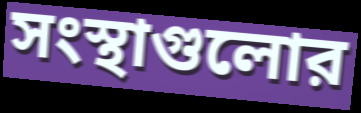
সংস্থাগুলোর